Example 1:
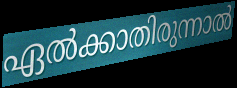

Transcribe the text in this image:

ഏൽക്കാതിരുന്നാൽ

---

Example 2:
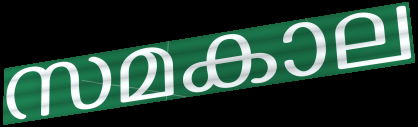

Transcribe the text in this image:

സമകാല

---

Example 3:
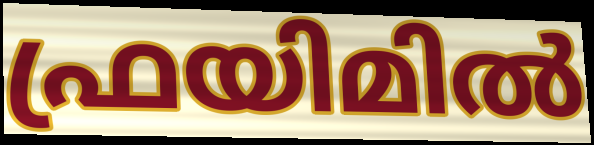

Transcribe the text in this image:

ഫ്രയിമിൽ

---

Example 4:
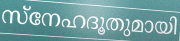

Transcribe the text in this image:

സ്നേഹദൂതുമായി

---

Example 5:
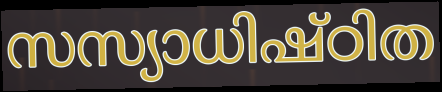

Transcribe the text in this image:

സസ്യാധിഷ്ഠിത